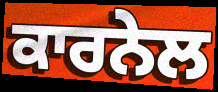
ਕਾਰਨੇਲ